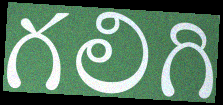
గలిగి